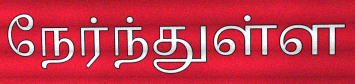
நேர்ந்துள்ள